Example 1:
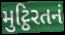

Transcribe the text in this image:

મુટ્ઠિરતનં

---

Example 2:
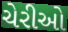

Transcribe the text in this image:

ચેરીઓ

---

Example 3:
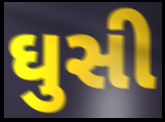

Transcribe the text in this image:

ઘુસી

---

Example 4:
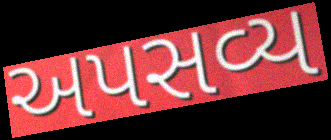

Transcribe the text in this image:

અપસવ્ય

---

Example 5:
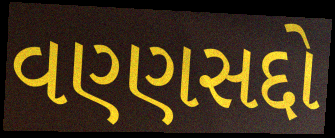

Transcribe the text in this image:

વણ્ણસદ્દો